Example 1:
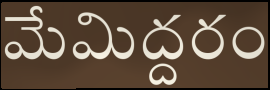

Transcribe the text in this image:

మేమిద్దరం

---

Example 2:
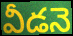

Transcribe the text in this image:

వీడనె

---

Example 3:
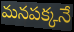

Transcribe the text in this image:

మనపక్కనే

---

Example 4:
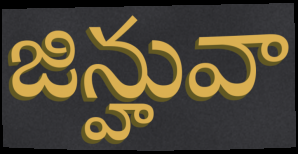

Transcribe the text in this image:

జిన్హువా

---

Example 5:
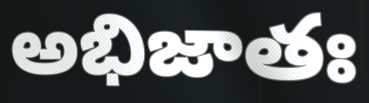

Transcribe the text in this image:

అభిజాతః